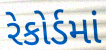
રેકોર્ડમાં